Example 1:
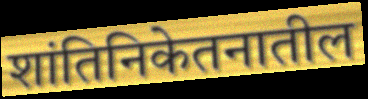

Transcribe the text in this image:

शांतिनिकेतनातील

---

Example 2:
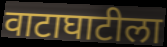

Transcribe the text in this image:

वाटाघाटीला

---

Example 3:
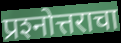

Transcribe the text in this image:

प्रश्‍नोत्तराचा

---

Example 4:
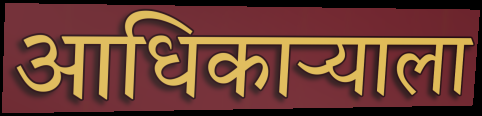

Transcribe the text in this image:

आधिकाऱ्याला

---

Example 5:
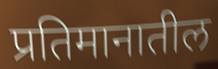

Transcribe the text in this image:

प्रतिमानातील